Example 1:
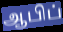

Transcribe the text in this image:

ஆபிப்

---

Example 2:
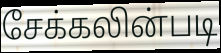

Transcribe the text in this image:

சேக்கலின்படி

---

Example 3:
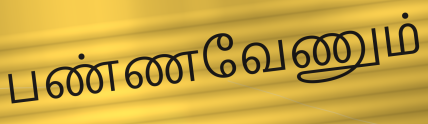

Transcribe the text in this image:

பண்ணவேணும்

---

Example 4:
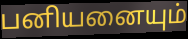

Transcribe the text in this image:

பனியனையும்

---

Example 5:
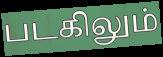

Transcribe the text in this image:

படகிலும்